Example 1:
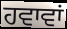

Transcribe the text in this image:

ਹਵਾਵਾਂ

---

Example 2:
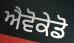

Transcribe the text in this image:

ਐਵੋਕੇਡੋ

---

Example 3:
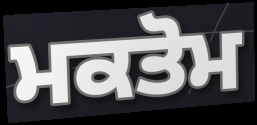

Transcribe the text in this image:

ਮਕਤੋਮ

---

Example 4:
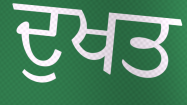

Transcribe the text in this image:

ਦੁਖਤ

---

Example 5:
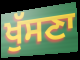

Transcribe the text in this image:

ਖੁੱਸਣਾ